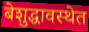
बेशुद्धावस्थेत